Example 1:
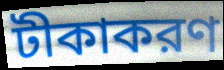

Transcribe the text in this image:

টীকাকরণ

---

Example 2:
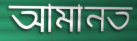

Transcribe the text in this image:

আমানত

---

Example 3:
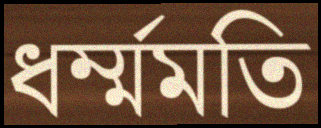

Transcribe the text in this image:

ধর্ম্মমতি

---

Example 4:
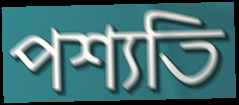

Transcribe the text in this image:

পশ্যতি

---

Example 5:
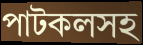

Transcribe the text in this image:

পাটকলসহ